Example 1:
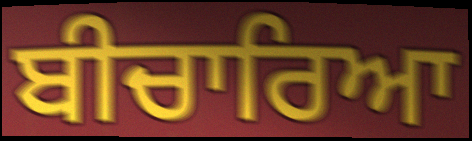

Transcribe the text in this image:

ਬੀਚਾਰਿਆ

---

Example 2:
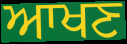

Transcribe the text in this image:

ਆਖਣ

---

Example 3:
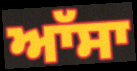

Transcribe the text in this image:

ਆੱਸਾ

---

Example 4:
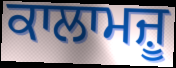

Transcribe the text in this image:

ਕਾਲਾਮਜ਼ੂ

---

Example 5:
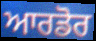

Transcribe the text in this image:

ਆਰਡੋਰ